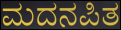
ಮದನಪಿತ